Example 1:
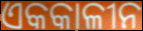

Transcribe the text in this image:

ଏକକାଳୀନ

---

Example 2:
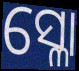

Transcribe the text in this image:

ସ୍ଳୋ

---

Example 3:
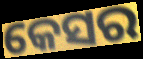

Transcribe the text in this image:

କେସର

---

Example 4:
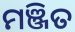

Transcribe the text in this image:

ମଞ୍ଜିତ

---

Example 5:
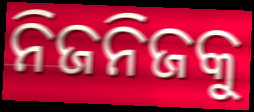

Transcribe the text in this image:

ନିଜନିଜକୁ